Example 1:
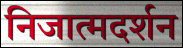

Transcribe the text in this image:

निजात्मदर्शन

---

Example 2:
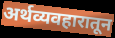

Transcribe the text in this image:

अर्थव्यवहारातून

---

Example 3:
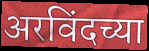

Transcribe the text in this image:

अरविंदच्या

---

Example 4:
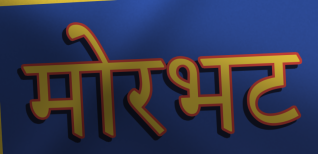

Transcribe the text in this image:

मोरभट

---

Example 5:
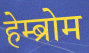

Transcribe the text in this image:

हेम्ब्रोम